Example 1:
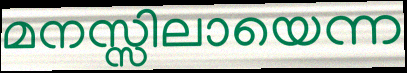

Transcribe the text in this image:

മനസ്സിലായെന്ന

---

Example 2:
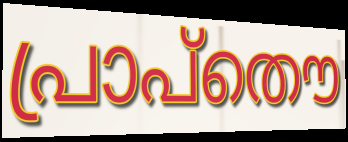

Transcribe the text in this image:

പ്രാപ്തൌ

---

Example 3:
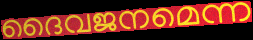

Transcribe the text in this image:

ദൈവജനമെന്ന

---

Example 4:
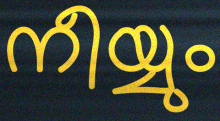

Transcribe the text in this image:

നീയ്യും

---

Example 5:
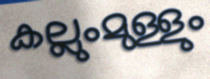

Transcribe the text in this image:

കല്ലുംമുള്ളും